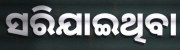
ସରିଯାଇଥିବା